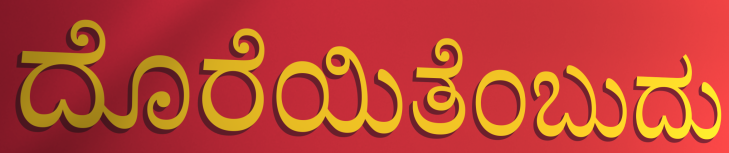
ದೊರೆಯಿತೆಂಬುದು